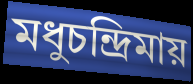
মধুচন্দ্রিমায়